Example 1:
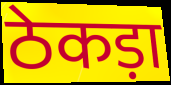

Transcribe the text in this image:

ठेकड़ा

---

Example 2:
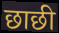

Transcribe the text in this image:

छाछी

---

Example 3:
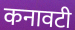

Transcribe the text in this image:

कनावटी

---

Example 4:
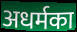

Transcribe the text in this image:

अधर्मका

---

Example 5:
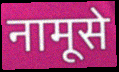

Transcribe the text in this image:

नामूसे